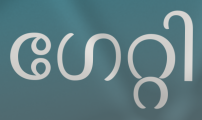
ഗേറ്റി